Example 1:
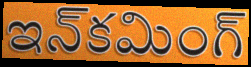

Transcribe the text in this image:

ఇన్‌కమింగ్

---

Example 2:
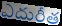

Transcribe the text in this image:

ఎదురీత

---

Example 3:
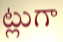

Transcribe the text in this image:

ట్లుగా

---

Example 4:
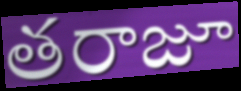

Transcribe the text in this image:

తరాజూ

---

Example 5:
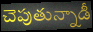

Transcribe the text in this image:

చెపుతున్నాడీ